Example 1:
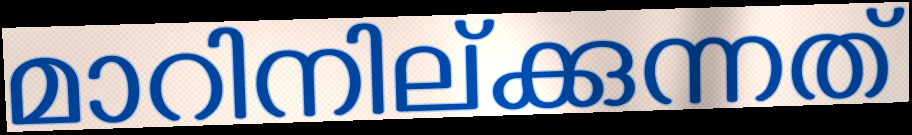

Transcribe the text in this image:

മാറിനില്ക്കുന്നത്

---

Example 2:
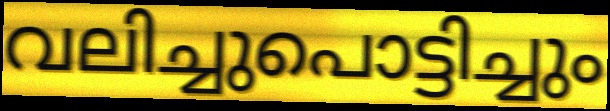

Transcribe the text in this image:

വലിച്ചുപൊട്ടിച്ചും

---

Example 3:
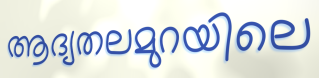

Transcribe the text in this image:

ആദ്യതലമുറയിലെ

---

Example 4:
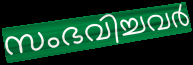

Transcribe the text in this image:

സംഭവിച്ചവർ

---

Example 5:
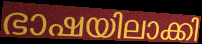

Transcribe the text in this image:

ഭാഷയിലാക്കി